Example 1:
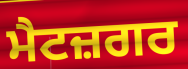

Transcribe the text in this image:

ਮੈਟਜ਼ਗਰ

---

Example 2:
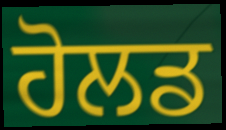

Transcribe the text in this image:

ਹੋਲਡ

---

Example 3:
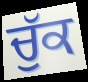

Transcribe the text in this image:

ਚੁੱਕ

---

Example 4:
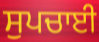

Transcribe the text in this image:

ਸੁਪਚਾਈ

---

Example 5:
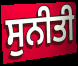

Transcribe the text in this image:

ਸੁਨੀਤੀ